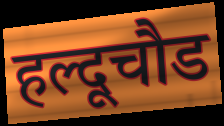
हल्दूचौड